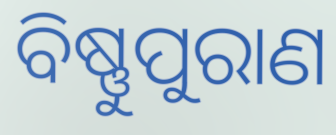
ବିଷ୍ଣୁପୁରାଣ